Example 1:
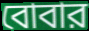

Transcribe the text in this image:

বোবার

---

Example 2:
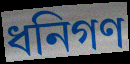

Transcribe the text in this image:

ধনিগণ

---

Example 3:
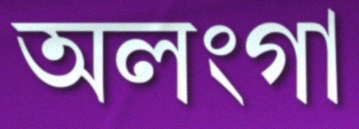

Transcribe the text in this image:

অলংগা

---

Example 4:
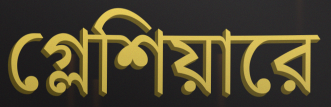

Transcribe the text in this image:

গ্লেশিয়ারে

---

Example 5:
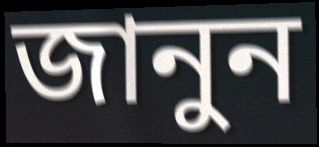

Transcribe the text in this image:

জানুন